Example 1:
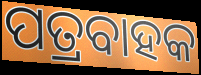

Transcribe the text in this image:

ପତ୍ରବାହକ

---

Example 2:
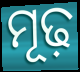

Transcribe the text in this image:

ମୂଢ଼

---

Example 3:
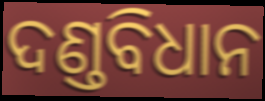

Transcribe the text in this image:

ଦଣ୍ଡବିଧାନ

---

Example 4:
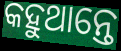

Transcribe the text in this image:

କହୁଥାନ୍ତେ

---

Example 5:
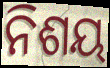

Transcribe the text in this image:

ନିଶୟ